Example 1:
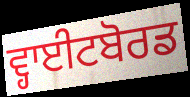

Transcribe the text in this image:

ਵ੍ਹਾਈਟਬੋਰਡ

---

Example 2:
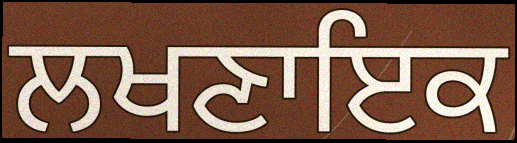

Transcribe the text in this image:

ਲਖਣਾਇਕ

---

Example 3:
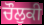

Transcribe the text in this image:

ਚੌਲੁਕੀ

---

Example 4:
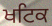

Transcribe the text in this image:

ਖਟਿਕ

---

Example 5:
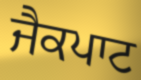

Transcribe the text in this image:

ਜੈਕਪਾਟ